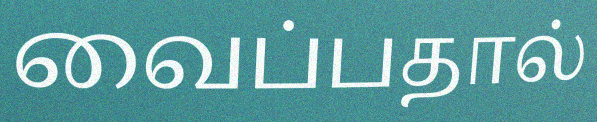
வைப்பதால்